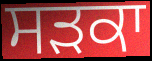
ਸੜਕਾ